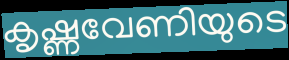
കൃഷ്ണവേണിയുടെ